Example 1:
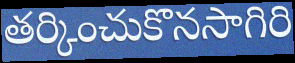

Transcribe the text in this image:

తర్కించుకొనసాగిరి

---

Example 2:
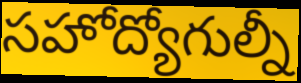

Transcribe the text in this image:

సహోద్యోగుల్నీ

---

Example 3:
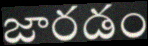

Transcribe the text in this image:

జారడం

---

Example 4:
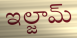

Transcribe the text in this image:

ఇల్జామ్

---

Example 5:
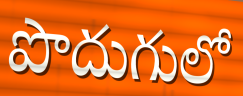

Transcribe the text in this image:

పొదుగులో